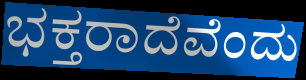
ಭಕ್ತರಾದೆವೆಂದು